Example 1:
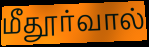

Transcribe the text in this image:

மீதூர்வால்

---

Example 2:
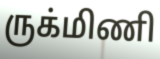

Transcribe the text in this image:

ருக்மிணி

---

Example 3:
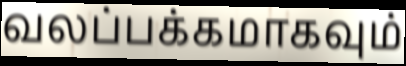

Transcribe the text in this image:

வலப்பக்கமாகவும்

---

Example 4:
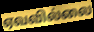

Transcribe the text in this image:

ஏவவில்லை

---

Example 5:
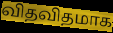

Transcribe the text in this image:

விதவிதமாக